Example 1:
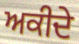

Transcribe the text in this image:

ਅਕੀਦੇ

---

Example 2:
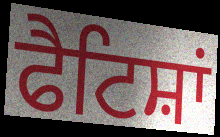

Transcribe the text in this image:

ਫੈਟਿਸ਼ਾਂ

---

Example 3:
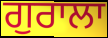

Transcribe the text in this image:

ਗੁਰਾਲਾ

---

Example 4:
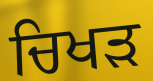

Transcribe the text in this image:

ਚਿਖੜ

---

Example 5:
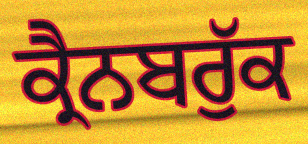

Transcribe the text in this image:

ਕ੍ਰੈਨਬਰੁੱਕ